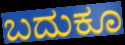
ಬದುಕೂ